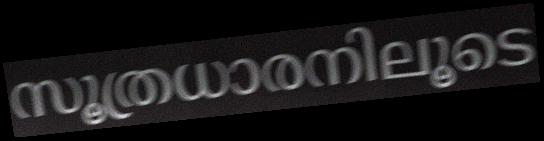
സൂത്രധാരനിലൂടെ